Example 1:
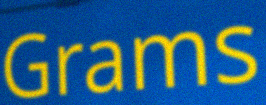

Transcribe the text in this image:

Grams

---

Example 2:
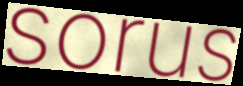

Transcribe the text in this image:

sorus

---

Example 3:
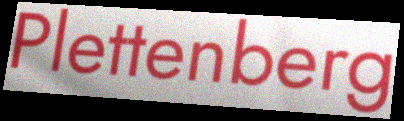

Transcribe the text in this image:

Plettenberg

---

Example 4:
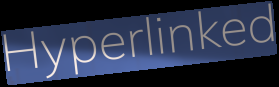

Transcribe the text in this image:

Hyperlinked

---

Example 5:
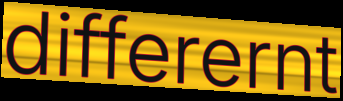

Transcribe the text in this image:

differernt